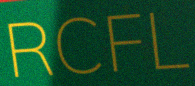
RCFL